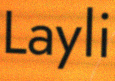
Layli